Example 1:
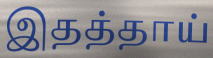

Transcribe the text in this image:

இதத்தாய்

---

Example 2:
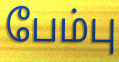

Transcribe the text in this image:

பேம்பு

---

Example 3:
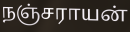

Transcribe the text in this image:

நஞ்சராயன்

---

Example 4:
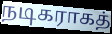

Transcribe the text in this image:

நடிகராகத்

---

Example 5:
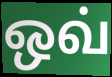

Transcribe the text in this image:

ஒவ்